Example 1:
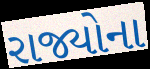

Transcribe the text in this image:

રાજ્યોના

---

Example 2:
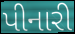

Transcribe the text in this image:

પીનારી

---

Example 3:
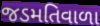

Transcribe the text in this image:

જડમતિવાળા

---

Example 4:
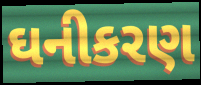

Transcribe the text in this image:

ઘનીકરણ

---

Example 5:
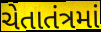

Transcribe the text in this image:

ચેતાતંત્રમાં